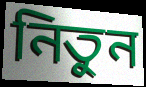
নিতুন